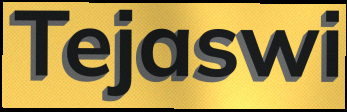
Tejaswi